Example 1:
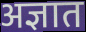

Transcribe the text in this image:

अज्ञात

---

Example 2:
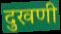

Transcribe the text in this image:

दुखणी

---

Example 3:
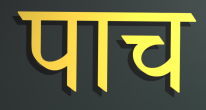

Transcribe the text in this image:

पाच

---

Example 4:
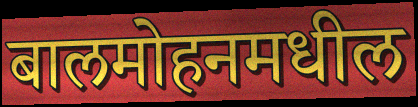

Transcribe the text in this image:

बालमोहनमधील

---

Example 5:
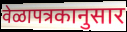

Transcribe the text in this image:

वेळापत्रकानुसार